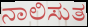
ನಾಲಿಸುತ